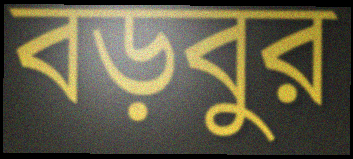
বড়বুর